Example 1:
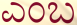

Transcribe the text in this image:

ಎಂಬ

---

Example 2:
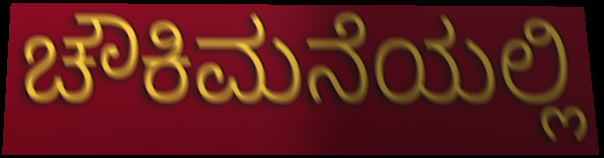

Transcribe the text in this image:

ಚೌಕಿಮನೆಯಲ್ಲಿ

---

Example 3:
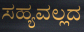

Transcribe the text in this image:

ಸಹ್ಯವಲ್ಲದ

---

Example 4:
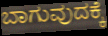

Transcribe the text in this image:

ಬಾಗುವುದಕ್ಕೆ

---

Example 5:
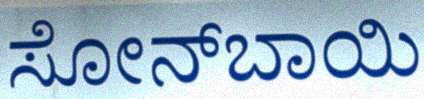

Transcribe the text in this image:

ಸೋನ್‍ಬಾಯಿ